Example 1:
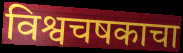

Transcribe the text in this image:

विश्वचषकाचा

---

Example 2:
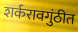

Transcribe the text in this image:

शर्करावगुंठीत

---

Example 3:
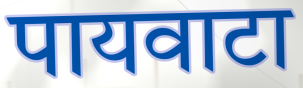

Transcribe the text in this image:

पायवाटा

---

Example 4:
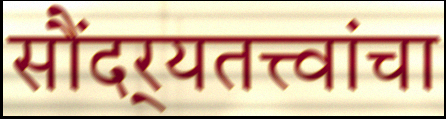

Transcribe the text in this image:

सौंदर्यतत्त्वांचा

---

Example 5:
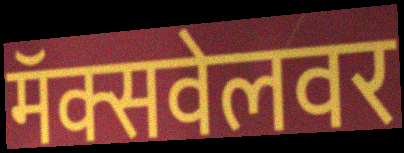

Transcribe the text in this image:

मॅक्सवेलवर